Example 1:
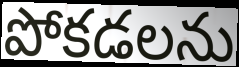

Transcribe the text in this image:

పోకడలను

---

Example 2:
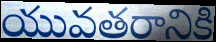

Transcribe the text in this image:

యువతరానికి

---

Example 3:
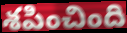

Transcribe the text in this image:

శపించింది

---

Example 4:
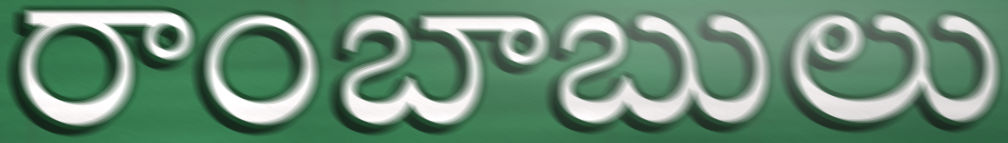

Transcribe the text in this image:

రాంబాబులు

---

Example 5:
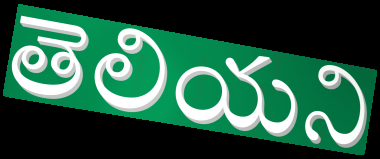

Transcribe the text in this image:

తెలియని